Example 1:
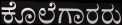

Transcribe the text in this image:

ಕೊಲೆಗಾರರು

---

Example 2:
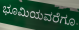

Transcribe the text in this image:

ಭೂಮಿಯವರೆಗೂ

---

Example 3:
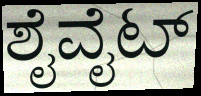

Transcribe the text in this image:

ಶೈವೈಟ್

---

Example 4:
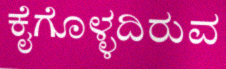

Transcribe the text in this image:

ಕೈಗೊಳ್ಳದಿರುವ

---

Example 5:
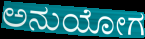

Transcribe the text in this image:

ಅನುಯೋಗ